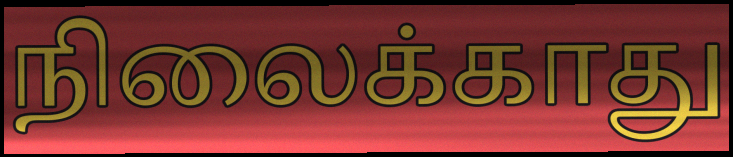
நிலைக்காது